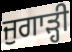
ਜੁਗਾੜ੍ਹੀ